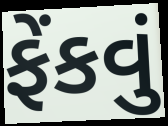
ફેંકવું